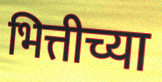
भित्तीच्या